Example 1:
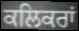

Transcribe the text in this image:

ਕਲਿਕਰਾਂ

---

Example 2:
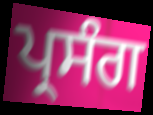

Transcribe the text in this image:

ਪ੍ਰਸੰਗ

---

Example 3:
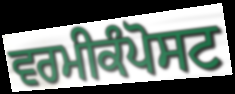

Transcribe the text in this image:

ਵਰਮੀਕੰਪੋਸਟ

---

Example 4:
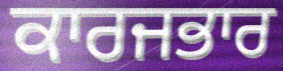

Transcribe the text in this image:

ਕਾਰਜਭਾਰ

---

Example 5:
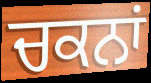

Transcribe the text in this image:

ਚਕਨਾਂ